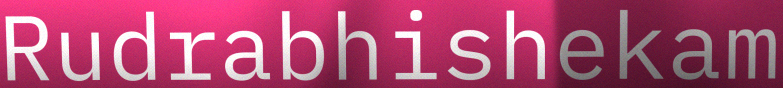
Rudrabhishekam